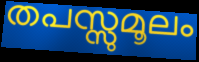
തപസ്സുമൂലം